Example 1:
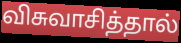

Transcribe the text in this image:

விசுவாசித்தால்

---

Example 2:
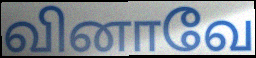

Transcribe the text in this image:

வினாவே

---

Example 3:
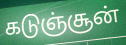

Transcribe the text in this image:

கடுஞ்சூன்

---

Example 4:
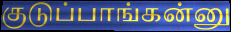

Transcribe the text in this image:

குடுப்பாங்கன்னு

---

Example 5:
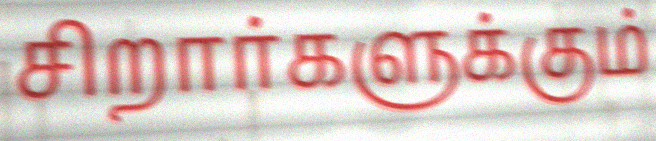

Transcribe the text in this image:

சிறார்களுக்கும்